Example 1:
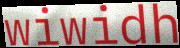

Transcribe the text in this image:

wiwidh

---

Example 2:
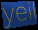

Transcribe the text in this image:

yeil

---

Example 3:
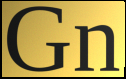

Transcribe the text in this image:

Gn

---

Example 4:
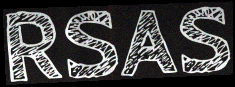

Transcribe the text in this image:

RSAS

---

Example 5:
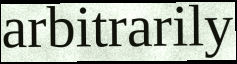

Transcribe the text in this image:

arbitrarily